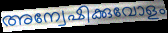
അന്വേഷിക്കുവോളം